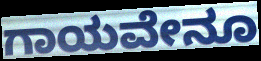
ಗಾಯವೇನೂ